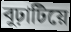
বুঢ়াটিয়ে